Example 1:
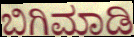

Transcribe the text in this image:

ಬಿಗಿಮಾಡಿ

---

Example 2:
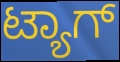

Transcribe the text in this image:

ಟ್ಯಾಗ್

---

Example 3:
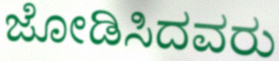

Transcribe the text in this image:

ಜೋಡಿಸಿದವರು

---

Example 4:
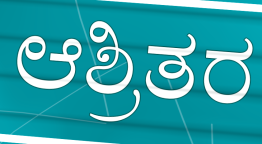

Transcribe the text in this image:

ಆಶ್ರಿತರ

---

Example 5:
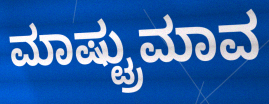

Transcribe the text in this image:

ಮಾಷ್ಟ್ರುಮಾವ